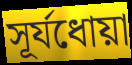
সূর্যধোয়া